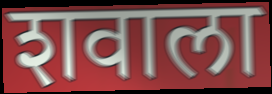
शवाला